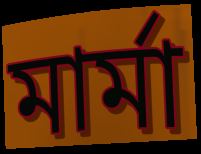
মার্মা